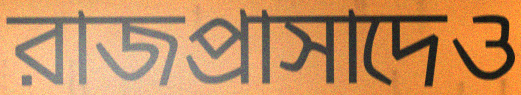
রাজপ্রাসাদেও